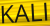
KALI